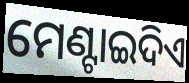
ମେଣ୍ଟାଇଦିଏ